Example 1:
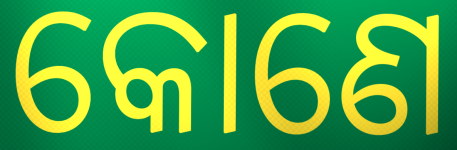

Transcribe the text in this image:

କୋଣେ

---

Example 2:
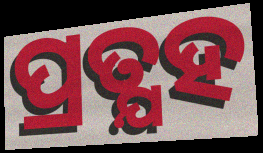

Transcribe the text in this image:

ପ୍ରତ୍ଯହ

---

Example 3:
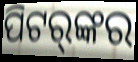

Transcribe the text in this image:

ପିଟର୍‌ଙ୍କର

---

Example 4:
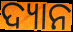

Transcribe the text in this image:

ଦ୍ୟାନ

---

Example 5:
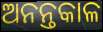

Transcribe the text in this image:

ଅନନ୍ତକାଳ